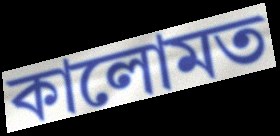
কালোমত